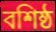
বশিষ্ঠ